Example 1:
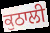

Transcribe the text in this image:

ਕੁਠਾਲੀ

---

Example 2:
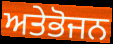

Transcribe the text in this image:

ਅਤੇਭੋਜਨ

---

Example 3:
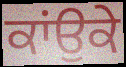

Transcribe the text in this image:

ਕਾਂਉਕੇ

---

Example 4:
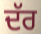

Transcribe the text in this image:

ਦੱਰ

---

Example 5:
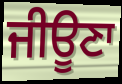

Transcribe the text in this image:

ਜੀਊਣਾ